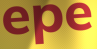
epe